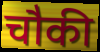
चौकी